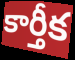
కార్తీక